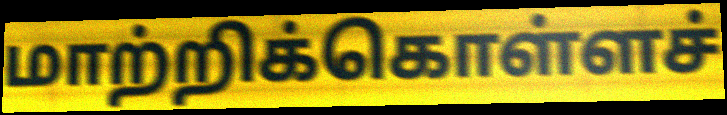
மாற்றிக்கொள்ளச்